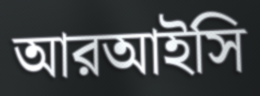
আরআইসি